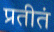
प्रतीतं